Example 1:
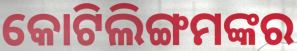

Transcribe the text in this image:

କୋଟିଲିଙ୍ଗମଙ୍କର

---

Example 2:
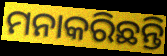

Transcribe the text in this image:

ମନାକରିଛନ୍ତି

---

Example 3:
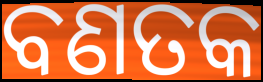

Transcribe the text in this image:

ବଣତକ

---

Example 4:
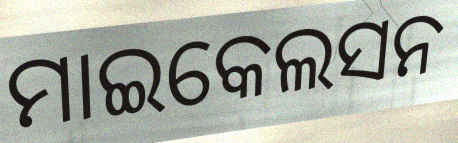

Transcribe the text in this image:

ମାଇକେଲସନ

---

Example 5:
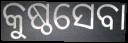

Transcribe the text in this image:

କୁଷ୍ଠସେବା